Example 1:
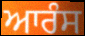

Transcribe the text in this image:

ਆਰੰਸ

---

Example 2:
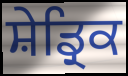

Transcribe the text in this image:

ਸ਼ੇਡ੍ਰਿਕ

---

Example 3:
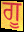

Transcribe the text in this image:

ਗੂ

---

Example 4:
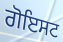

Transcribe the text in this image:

ਗੋਇਸਟ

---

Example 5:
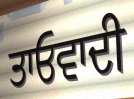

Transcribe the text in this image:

ਤਾਓਵਾਦੀ